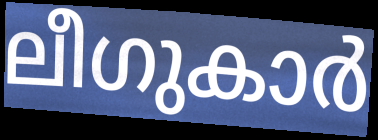
ലീഗുകാർ